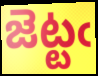
జెట్టఁ